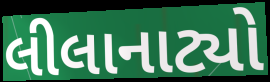
લીલાનાટ્યો